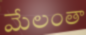
మేలంతా